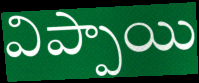
విప్పాయి